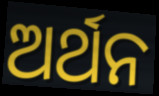
ଅର୍ଥନ